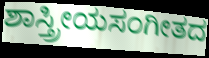
ಶಾಸ್ತ್ರೀಯಸಂಗೀತದ